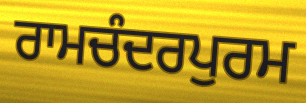
ਰਾਮਚੰਦਰਪੁਰਮ